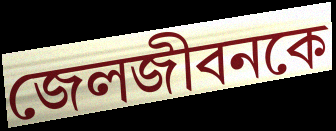
জেলজীবনকে